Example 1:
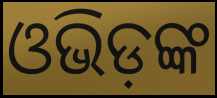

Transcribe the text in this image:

ଓଭିଡ଼ଙ୍କ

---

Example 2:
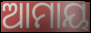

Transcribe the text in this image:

ଆମାୟ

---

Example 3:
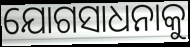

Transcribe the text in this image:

ଯୋଗସାଧନାକୁ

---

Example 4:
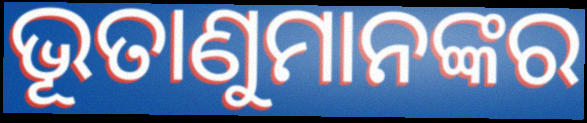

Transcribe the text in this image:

ଭୂତାଣୁମାନଙ୍କର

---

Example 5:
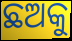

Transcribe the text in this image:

ଛଅକୁ